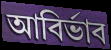
আবির্ভাব